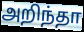
அறிந்தா